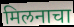
मिलनाचा